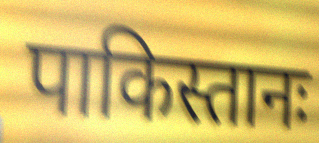
पाकिस्तानः